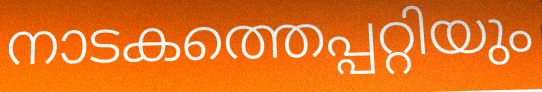
നാടകത്തെപ്പറ്റിയും